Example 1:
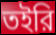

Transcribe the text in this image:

তইরি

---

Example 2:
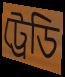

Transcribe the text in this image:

ট্রেডি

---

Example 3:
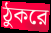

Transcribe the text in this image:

ঠুকরে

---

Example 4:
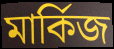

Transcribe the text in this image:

মার্কিজ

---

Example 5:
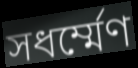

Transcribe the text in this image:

সধর্ম্মেণ